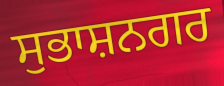
ਸੁਭਾਸ਼ਨਗਰ